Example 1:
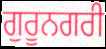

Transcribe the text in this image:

ਗੁਰੂਨਗਰੀ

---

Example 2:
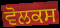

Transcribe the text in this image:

ਵੋਲਕਸ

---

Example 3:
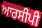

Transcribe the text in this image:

ਆਰਸੀਪੀ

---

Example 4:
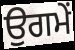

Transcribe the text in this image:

ਉਗਮੇਂ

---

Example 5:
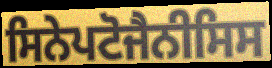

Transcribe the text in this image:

ਸਿਨੇਪਟੋਜੈਨੀਸਿਸ